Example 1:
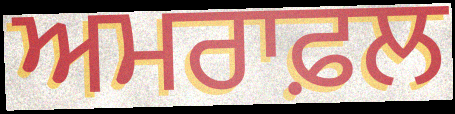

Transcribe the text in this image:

ਅਮਰਾਫ਼ਲ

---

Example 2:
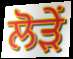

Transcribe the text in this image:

ਲੋੜੇਂ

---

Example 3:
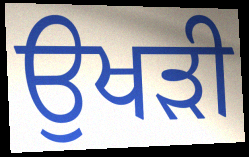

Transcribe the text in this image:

ਉਖੜੀ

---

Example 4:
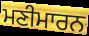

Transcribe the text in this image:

ਮਣੀਮਾਰਨ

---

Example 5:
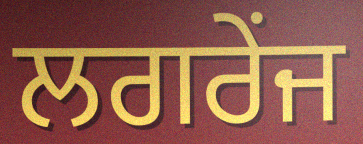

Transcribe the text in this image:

ਲਗਰੇਂਜ